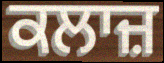
ਕਲਾਜ਼